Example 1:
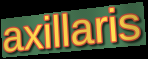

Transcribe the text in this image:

axillaris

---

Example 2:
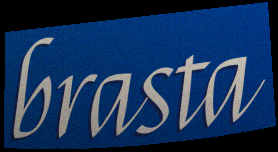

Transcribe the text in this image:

brasta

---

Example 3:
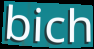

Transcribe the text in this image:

bich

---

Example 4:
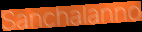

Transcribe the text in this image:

Sanchalanno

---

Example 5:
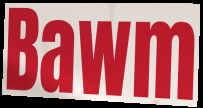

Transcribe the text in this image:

Bawm